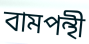
বামপন্থী